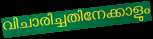
വിചാരിച്ചതിനേക്കാളും